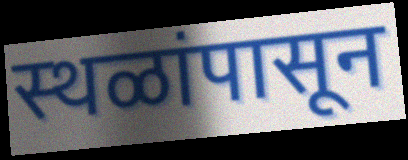
स्थळांपासून